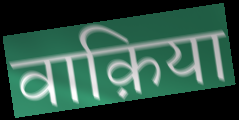
वाक़िया